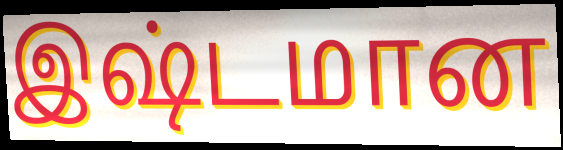
இஷ்டமான